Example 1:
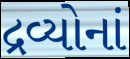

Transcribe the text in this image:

દ્રવ્યોનાં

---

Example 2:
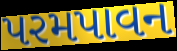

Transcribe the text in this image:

પરમપાવન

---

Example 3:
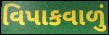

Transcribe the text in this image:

વિપાકવાળું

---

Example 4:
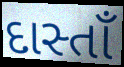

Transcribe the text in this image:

દાસ્તાઁ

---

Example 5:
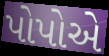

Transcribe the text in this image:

પોપોએ